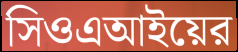
সিওএআইয়ের